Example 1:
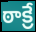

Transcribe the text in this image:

ఠాక్రే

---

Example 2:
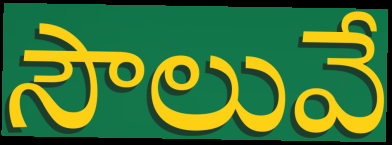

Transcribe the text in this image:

సౌలువే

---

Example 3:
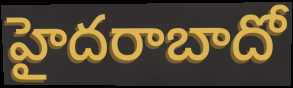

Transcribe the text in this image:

హైదరాబాదో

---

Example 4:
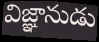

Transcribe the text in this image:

విజ్ఞానుడు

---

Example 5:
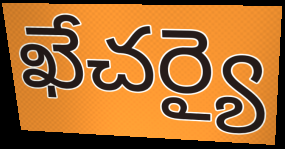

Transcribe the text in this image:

ఖేచర్యై